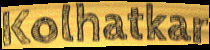
Kolhatkar